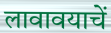
लावावयाचें